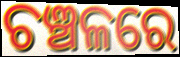
ଚଞ୍ଚଳରେ